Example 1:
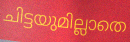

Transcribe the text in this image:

ചിട്ടയുമില്ലാതെ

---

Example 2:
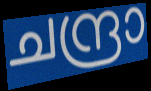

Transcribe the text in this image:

ചന്ദ്രാ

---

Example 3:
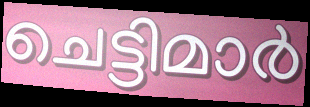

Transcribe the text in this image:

ചെട്ടിമാർ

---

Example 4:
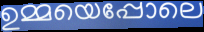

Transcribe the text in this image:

ഉമ്മയെപ്പോലെ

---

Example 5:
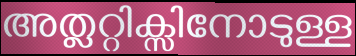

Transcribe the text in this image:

അത്ലറ്റിക്സിനോടുള്ള